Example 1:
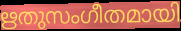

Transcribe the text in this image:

ഋതുസംഗീതമായി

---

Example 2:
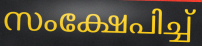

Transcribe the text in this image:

സംക്ഷേപിച്ച്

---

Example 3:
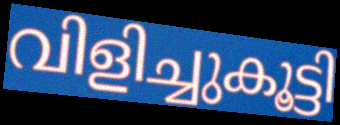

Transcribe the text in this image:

വിളിച്ചുകൂട്ടി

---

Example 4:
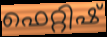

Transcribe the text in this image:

ഫെറ്റിഷ്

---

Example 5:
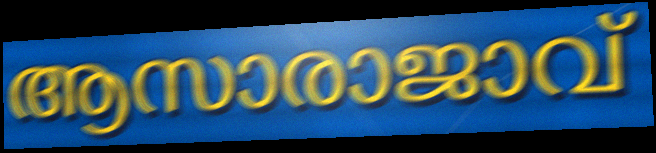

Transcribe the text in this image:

ആസാരാജാവ്